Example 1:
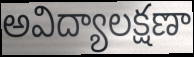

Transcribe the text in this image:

అవిద్యాలక్షణా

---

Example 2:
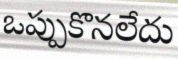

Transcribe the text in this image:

ఒప్పుకొనలేదు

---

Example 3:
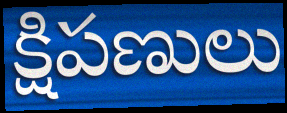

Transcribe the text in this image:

క్షిపణులు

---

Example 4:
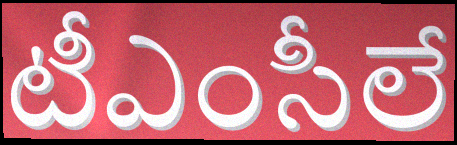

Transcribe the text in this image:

టీఎంసీలే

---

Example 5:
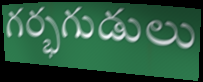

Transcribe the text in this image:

గర్భగుడులు